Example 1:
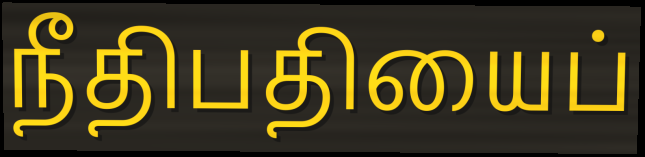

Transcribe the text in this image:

நீதிபதியைப்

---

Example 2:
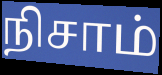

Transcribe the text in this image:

நிசாம்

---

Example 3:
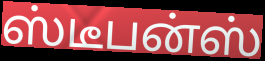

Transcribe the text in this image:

ஸ்டீபன்ஸ்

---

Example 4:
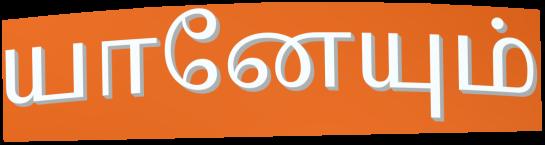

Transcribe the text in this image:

யானேயும்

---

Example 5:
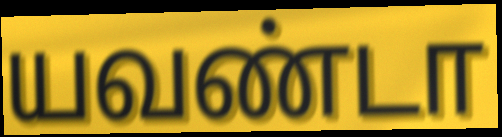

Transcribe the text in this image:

யவண்டா